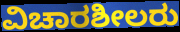
ವಿಚಾರಶೀಲರು